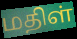
மதிள்